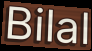
Bilal